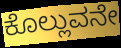
ಕೊಲ್ಲುವನೇ